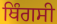
ਥਿੰਗਸੀ